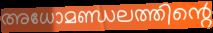
അധോമണ്ഡലത്തിന്റെ